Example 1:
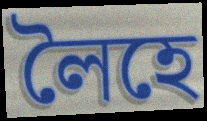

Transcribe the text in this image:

লৈহে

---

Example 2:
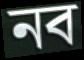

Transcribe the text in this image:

নব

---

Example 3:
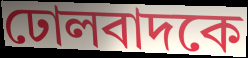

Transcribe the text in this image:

ঢোলবাদকে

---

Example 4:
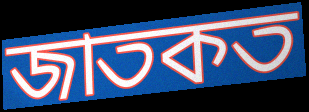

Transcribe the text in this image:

জাতকত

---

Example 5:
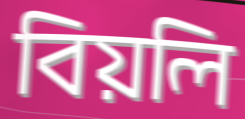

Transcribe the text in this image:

বিয়লি